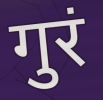
गुरं